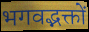
भगवद्भक्तों